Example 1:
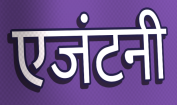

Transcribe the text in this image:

एजंटनी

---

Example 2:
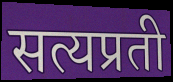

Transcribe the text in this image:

सत्यप्रती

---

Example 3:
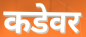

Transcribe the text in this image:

कडेवर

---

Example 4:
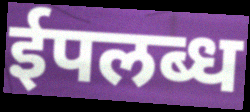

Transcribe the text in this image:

ईपलब्ध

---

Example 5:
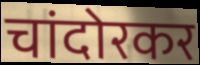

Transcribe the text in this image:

चांदोरकर